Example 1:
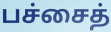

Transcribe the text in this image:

பச்சைத்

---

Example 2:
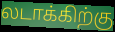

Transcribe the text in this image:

லடாக்கிற்கு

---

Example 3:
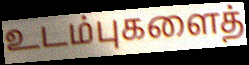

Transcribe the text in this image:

உடம்புகளைத்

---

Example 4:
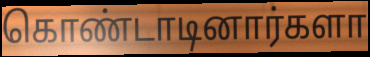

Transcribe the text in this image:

கொண்டாடினார்களா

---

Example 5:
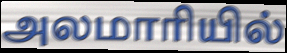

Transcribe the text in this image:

அலமாரியில்